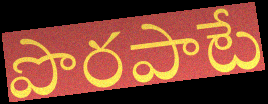
పొరపాటే